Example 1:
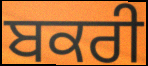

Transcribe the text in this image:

ਬਕਰੀ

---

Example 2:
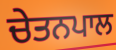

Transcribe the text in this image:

ਚੇਤਨਪਾਲ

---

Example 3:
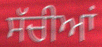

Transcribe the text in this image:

ਸੱਚੀਆਂ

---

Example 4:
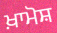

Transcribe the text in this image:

ਖ਼ਾਮੋਸ਼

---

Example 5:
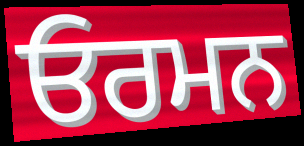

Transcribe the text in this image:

ਓਰਮਨ